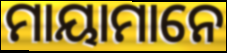
ମାୟାମାନେ